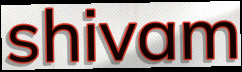
shivam